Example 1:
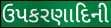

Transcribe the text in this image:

ઉપકરણાદિની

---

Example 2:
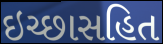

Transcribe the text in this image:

ઇચ્છાસહિત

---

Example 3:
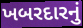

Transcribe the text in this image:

ખબરદારનું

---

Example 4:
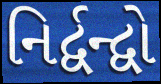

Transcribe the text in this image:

નિર્દ્વન્દ્વો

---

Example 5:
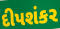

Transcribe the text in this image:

દીપશંકર